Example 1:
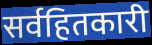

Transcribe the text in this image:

सर्वहितकारी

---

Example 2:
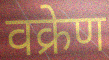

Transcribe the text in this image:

वक्रेण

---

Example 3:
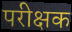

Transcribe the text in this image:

परीक्षक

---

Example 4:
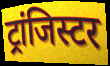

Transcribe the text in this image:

ट्रांजिस्टर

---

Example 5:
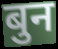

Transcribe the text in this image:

बुन